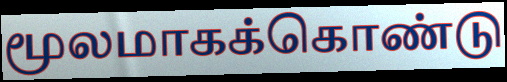
மூலமாகக்கொண்டு